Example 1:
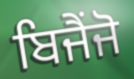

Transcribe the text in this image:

ਬਿਜੈਂਜੋ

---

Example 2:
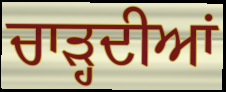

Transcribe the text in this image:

ਚਾੜ੍ਹਦੀਆਂ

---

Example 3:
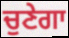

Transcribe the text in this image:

ਚੁਣੇਗਾ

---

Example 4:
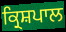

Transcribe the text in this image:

ਕ੍ਰਿਸ਼ਪਾਲ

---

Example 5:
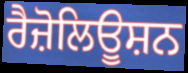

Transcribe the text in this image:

ਰੈਜ਼ੋਲਿਊਸ਼ਨ